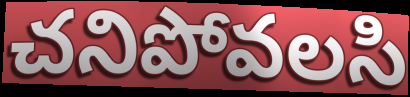
చనిపోవలసి